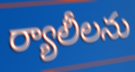
ర్యాలీలను